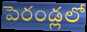
పెరండ్లలో